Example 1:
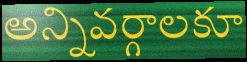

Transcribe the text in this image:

అన్నివర్గాలకూ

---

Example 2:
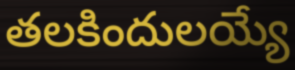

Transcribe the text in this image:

తలకిందులయ్యే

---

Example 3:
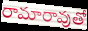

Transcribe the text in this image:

రామారావుతో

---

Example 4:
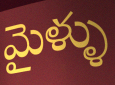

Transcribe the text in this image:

మైళ్ళు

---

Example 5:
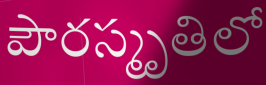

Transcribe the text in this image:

పౌరస్మృతిలో